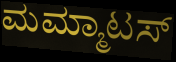
ಮಮ್ಮಾಟಸ್